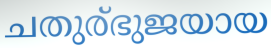
ചതുര്ഭുജയായ